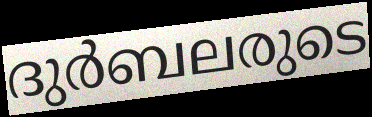
ദുർബലരുടെ